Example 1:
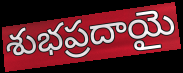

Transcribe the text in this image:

శుభప్రదాయై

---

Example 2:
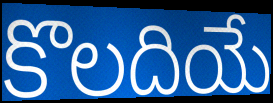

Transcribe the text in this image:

కొలదియే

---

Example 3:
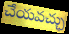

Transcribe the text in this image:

చేయవచ్ఛు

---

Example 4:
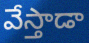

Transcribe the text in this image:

వేస్తాడా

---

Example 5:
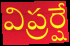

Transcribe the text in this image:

విప్రర్షే